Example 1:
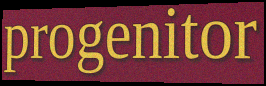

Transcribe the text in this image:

progenitor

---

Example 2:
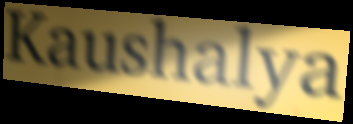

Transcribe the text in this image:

Kaushalya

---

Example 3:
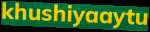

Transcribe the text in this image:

khushiyaaytu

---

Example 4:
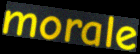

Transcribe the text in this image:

morale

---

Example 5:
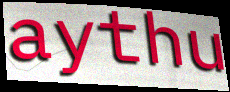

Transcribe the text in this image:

aythu